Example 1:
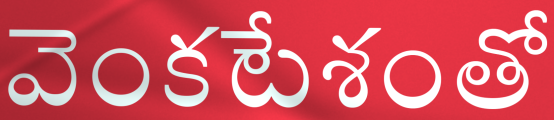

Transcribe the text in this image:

వెంకటేశంతో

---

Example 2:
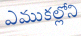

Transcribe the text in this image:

ఎముకల్లోని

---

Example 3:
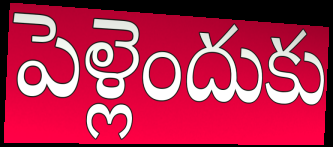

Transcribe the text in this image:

పెళ్లెందుకు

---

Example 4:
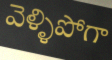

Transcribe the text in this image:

వెళ్ళిపోగా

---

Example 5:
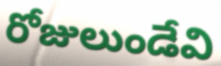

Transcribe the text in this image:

రోజులుండేవి